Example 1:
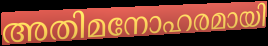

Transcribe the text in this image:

അതിമനോഹരമായി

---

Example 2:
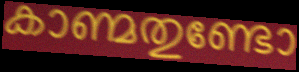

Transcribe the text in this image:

കാണ്മതുണ്ടോ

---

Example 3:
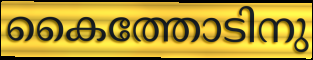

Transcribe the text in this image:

കൈത്തോടിനു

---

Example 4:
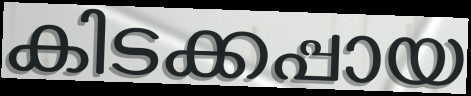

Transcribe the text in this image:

കിടക്കപ്പായ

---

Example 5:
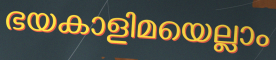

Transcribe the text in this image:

ഭയകാളിമയെല്ലാം